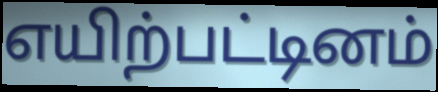
எயிற்பட்டினம்